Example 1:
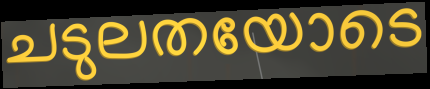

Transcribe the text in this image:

ചടുലതയോടെ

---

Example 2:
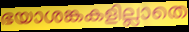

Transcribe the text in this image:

ഭയാശങ്കകളില്ലാതെ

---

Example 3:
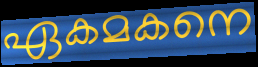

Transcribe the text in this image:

ഏകമകനെ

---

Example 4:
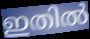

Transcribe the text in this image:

ഇതിൽ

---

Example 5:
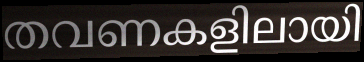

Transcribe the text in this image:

തവണകളിലായി